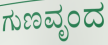
ಗುಣವೃಂದ